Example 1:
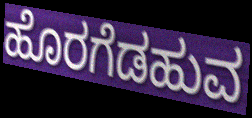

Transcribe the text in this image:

ಹೊರಗೆಡಹುವ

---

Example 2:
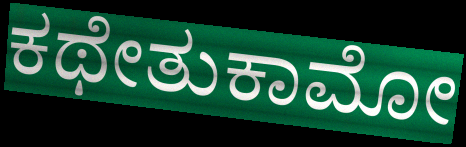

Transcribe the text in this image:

ಕಥೇತುಕಾಮೋ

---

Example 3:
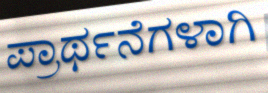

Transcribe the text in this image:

ಪ್ರಾರ್ಥನೆಗಳಾಗಿ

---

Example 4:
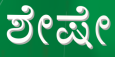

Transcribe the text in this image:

ಶೇಷೇ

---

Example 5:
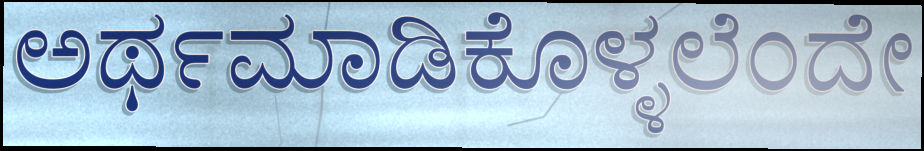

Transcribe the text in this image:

ಅರ್ಥಮಾಡಿಕೊಳ್ಳಲೆಂದೇ